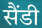
सैंडी